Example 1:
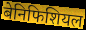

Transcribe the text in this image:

बेनिफिशियल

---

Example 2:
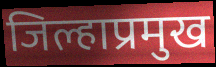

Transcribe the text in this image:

जिल्हाप्रमुख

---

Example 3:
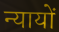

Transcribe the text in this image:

न्यायों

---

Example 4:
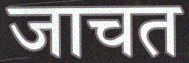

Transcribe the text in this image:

जाचत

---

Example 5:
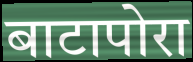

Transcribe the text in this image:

बाटापोरा